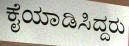
ಕೈಯಾಡಿಸಿದ್ದರು